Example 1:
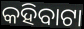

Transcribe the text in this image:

କହିବାଟା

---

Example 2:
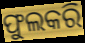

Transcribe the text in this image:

ଫୁଲକରି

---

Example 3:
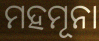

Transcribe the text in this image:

ମହମୂନା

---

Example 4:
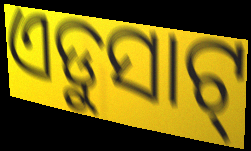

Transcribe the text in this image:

ଏଡୁସାଟ୍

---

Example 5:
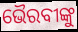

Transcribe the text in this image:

ଭୈରବୀଙ୍କୁ